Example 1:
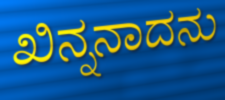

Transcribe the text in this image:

ಖಿನ್ನನಾದನು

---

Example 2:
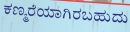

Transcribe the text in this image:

ಕಣ್ಮರೆಯಾಗಿರಬಹುದು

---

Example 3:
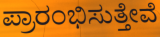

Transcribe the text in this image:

ಪ್ರಾರಂಭಿಸುತ್ತೇವೆ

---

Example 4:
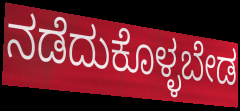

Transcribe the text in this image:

ನಡೆದುಕೊಳ್ಳಬೇಡ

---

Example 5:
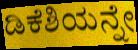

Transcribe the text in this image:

ಡಿಕೆಶಿಯನ್ನೇ